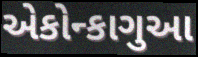
એકોન્કાગુઆ